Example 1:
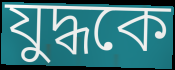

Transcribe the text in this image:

যুদ্ধকে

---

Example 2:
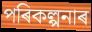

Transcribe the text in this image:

পৰিকল্পনাৰ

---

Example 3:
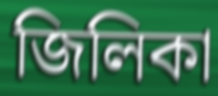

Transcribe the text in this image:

জিলিকা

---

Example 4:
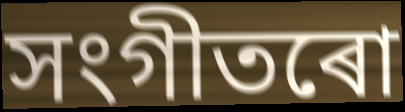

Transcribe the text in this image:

সংগীতৰো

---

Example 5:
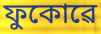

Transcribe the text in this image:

ফুকোৱে